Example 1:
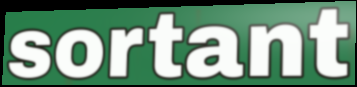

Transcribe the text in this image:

sortant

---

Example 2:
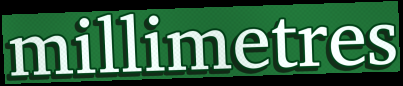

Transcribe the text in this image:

millimetres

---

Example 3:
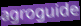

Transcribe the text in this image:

agroguide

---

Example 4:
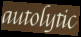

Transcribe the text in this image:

autolytic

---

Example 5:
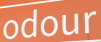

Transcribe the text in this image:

odour